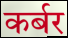
कर्बर